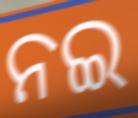
ନଇ